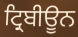
ਟ੍ਰਿਬੀਊਨ